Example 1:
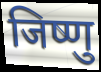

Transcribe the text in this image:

जिष्णु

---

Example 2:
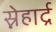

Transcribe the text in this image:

स्नेहार्द्र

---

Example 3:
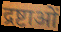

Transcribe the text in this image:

द्रष्टाओं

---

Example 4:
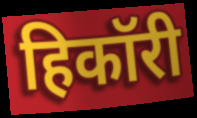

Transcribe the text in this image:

हिकॉरी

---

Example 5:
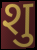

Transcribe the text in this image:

शु